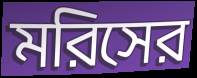
মরিসের